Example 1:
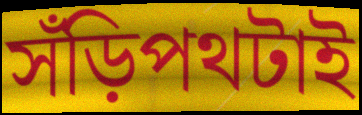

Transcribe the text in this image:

সঁড়িপথটাই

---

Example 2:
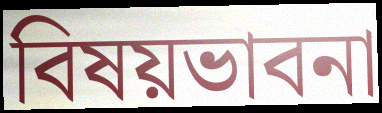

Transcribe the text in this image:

বিষয়ভাবনা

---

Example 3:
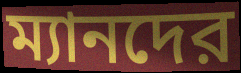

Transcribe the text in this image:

ম্যানদের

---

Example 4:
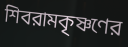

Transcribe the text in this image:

শিবরামকৃষ্ণণের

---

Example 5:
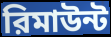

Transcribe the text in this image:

রিমাউন্ট